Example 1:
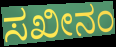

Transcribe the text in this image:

ಸಖೀನಂ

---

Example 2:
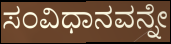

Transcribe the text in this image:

ಸಂವಿಧಾನವನ್ನೇ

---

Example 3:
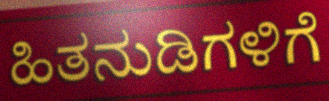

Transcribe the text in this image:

ಹಿತನುಡಿಗಳಿಗೆ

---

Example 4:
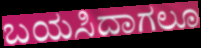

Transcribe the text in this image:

ಬಯಸಿದಾಗಲೂ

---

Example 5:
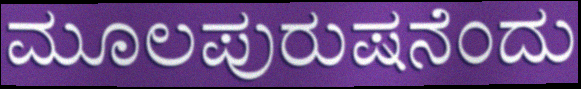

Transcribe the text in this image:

ಮೂಲಪುರುಷನೆಂದು